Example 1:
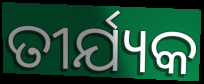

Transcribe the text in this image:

ତୀର୍ଯ୍ୟକ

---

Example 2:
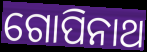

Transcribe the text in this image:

ଗୋପିନାଥ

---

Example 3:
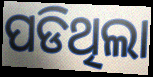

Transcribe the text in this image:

ପଡିଥିଲା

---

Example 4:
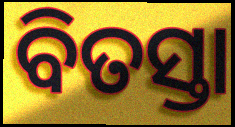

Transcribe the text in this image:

ବିତସ୍ତା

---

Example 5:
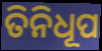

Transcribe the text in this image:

ତିନିଧୂପ